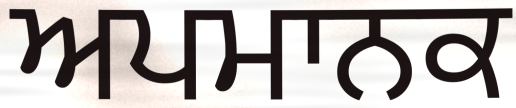
ਅਪਮਾਨਕ